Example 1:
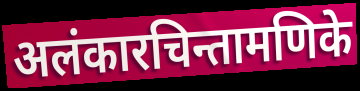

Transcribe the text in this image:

अलंकारचिन्तामणिके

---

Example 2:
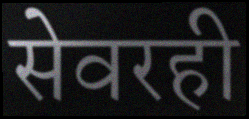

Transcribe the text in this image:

सेवरही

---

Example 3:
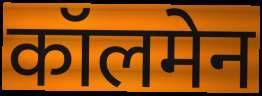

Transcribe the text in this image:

कॉलमेन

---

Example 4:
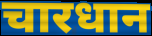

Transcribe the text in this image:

चारधान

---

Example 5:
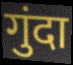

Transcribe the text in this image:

गुंदा